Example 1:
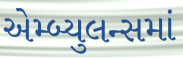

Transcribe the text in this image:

એમ્બ્યુલન્સમાં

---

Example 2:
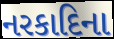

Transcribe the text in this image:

નરકાદિના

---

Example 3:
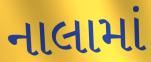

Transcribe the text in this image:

નાલામાં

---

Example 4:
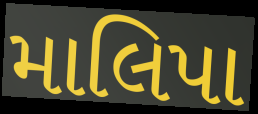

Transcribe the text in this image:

માલિપા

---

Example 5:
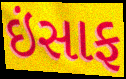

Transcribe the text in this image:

ઇંસાફ